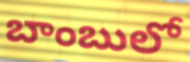
బాంబులో